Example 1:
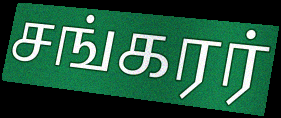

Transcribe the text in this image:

சங்கரர்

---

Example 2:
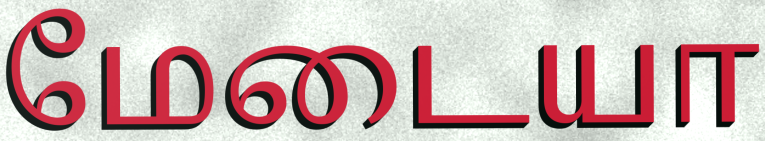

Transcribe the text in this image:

மேடையா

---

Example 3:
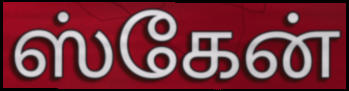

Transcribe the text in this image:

ஸ்கேன்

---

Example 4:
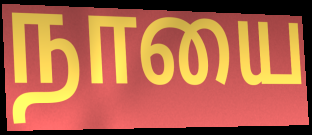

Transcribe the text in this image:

நாயை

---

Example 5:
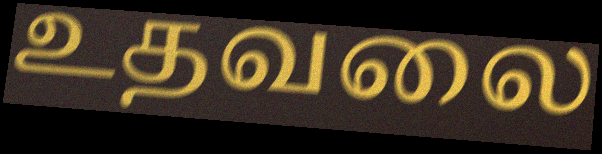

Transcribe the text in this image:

உதவலை